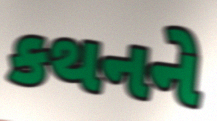
કથનને